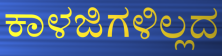
ಕಾಳಜಿಗಳಿಲ್ಲದ